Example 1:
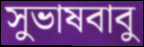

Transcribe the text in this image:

সুভাষবাবু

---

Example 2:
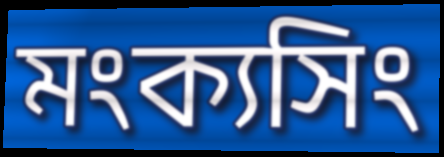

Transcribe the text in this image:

মংক্যসিং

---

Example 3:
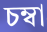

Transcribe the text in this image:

চম্বা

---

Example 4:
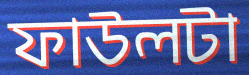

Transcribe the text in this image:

ফাউলটা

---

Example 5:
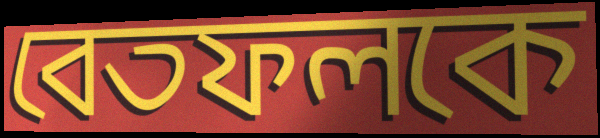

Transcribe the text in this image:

বেতফলকে